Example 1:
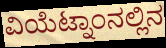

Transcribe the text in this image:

ವಿಯೆಟ್ನಾಂನಲ್ಲಿನ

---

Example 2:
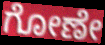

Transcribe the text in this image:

ಗೋಣೇ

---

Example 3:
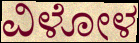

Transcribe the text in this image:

ವಿಳೋಳ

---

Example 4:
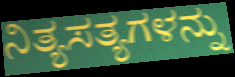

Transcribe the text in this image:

ನಿತ್ಯಸತ್ಯಗಳನ್ನು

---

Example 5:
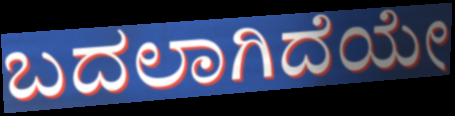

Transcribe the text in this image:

ಬದಲಾಗಿದೆಯೇ